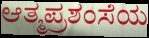
ಆತ್ಮಪ್ರಶಂಸೆಯ